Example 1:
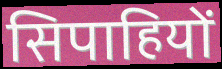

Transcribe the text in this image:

सिपाहियों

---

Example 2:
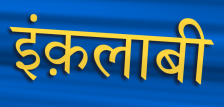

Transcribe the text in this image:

इंक़लाबी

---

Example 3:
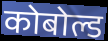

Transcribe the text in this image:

कोबोल्ड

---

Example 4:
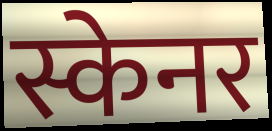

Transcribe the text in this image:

स्केनर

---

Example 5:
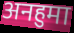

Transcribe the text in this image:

अनहुमा